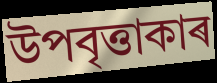
উপবৃত্তাকাৰ